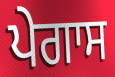
ਪੇਗਾਸ